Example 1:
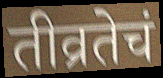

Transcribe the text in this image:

तीव्रतेचं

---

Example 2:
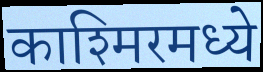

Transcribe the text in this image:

काश्मिरमध्ये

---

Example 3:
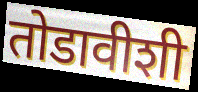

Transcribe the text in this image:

तोडावीशी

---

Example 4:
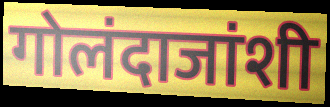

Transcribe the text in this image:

गोलंदाजांशी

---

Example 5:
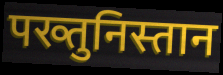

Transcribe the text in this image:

पख्तुनिस्तान